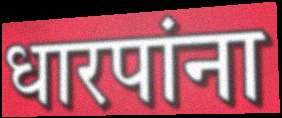
धारपांना